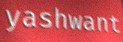
yashwant